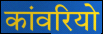
कांवरियो